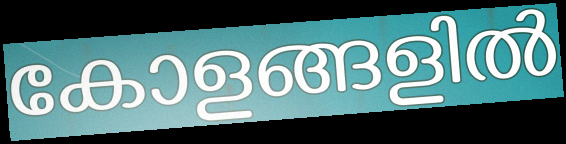
കോളങ്ങളിൽ